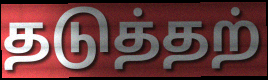
தடுத்தற்